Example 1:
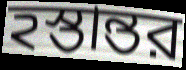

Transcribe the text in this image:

হস্তান্তর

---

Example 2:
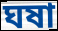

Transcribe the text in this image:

ঘষা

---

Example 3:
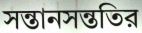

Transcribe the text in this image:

সন্তানসন্ততির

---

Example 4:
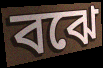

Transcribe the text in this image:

বঝে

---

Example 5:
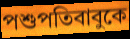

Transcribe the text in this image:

পশুপতিবাবুকে